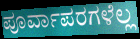
ಪೂರ್ವಾಪರಗಳೆಲ್ಲ